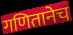
गणितानेच